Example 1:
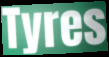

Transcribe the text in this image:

Tyres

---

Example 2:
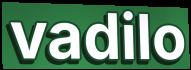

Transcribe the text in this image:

vadilo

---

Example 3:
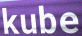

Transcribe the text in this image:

kube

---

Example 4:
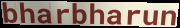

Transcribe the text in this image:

bharbharun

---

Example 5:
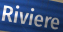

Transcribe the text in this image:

Riviere